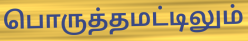
பொருத்தமட்டிலும்